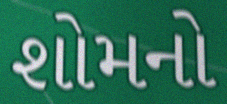
શોમનો